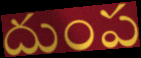
దుంప